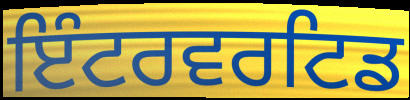
ਇੰਟਰਵਰਟਿਡ